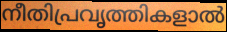
നീതിപ്രവൃത്തികളാൽ